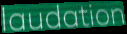
laudation